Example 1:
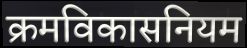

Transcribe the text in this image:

क्रमविकासनियम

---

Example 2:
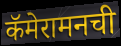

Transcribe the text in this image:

कॅमेरामनची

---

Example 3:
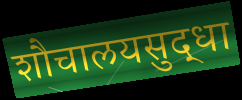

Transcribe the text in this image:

शौचालयसुद्धा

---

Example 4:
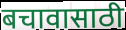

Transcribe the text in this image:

बचावासाठी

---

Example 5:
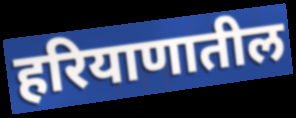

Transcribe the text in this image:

हरियाणातील